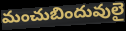
మంచుబిందువులై